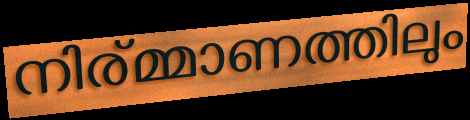
നിര്മ്മാണത്തിലും